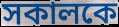
সকালকে